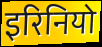
इरिनियो